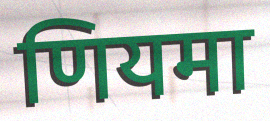
णियमा